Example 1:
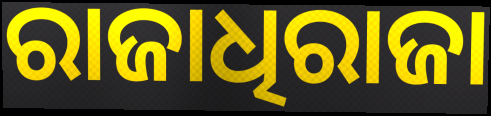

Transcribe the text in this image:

ରାଜାଧିରାଜା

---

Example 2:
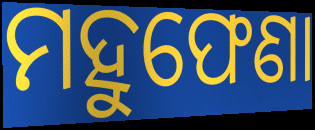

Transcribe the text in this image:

ମହୁଫେଣା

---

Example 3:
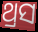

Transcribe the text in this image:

ଥ୍ରସ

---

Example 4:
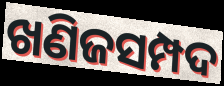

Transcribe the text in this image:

ଖଣିଜସମ୍ପଦ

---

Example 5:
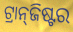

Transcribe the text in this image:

ଟ୍ରାନ୍‍ଜିଷ୍ଟର